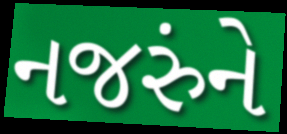
નજરુંને